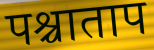
पश्चाताप